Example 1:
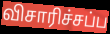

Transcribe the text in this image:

விசாரிச்சப்ப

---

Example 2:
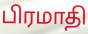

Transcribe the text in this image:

பிரமாதி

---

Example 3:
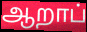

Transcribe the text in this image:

ஆறாப்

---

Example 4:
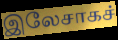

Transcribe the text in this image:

இலேசாகச்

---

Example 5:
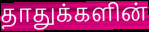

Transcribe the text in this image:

தாதுக்களின்